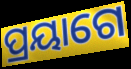
ପ୍ରୟାଗେ